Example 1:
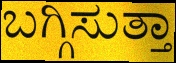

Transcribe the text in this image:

ಬಗ್ಗಿಸುತ್ತಾ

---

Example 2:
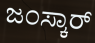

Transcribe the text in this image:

ಜಂಸ್ಕಾರ್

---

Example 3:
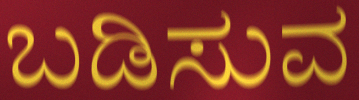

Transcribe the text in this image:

ಬಡಿಸುವ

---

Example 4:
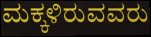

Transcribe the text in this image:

ಮಕ್ಕಳಿರುವವರು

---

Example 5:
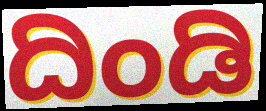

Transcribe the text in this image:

ದಿಂಡಿ